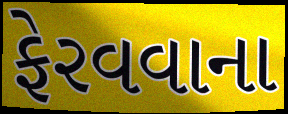
ફેરવવાના